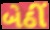
બેઠીં